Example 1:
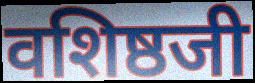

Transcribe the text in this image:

वशिष्ठजी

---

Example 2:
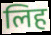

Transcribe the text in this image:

लिह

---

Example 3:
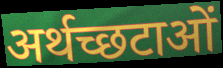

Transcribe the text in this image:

अर्थच्छटाओं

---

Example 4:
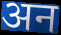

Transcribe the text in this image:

अन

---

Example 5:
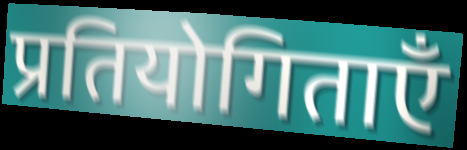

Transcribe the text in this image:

प्रतियोगिताएँ